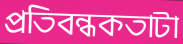
প্রতিবন্ধকতাটা